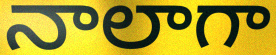
నాలాగా